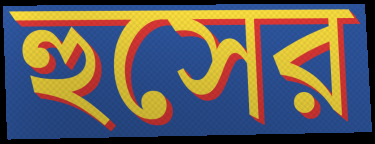
হুসের